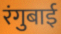
रंगुबाई